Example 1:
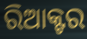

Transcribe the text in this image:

ରିଆକ୍ଟର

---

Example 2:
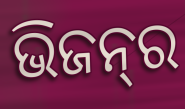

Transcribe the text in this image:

ଭିଜନ୍‌ର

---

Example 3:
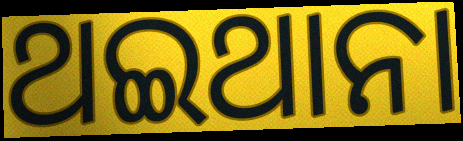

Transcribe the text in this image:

ଥଇଥାନା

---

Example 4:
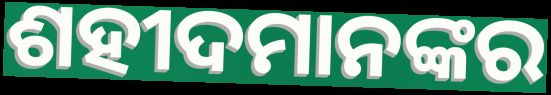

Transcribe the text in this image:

ଶହୀଦମାନଙ୍କର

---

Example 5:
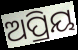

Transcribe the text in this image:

ଅପ୍ରିୟ